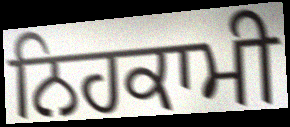
ਨਿਹਕਾਮੀ